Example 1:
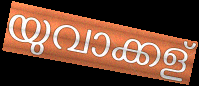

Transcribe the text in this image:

യുവാക്കള്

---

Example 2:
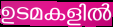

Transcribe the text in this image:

ഉടമകളിൽ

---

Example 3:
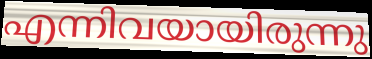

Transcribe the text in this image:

എന്നിവയായിരുന്നു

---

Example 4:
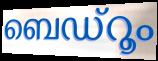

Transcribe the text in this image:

ബെഡ്റൂം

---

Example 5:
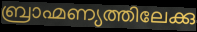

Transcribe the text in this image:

ബ്രാഹ്മണ്യത്തിലേക്കു